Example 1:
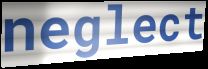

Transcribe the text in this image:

neglect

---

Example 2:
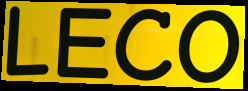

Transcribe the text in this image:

LECO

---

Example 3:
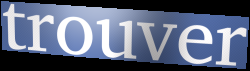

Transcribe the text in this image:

trouver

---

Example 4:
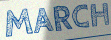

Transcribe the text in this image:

MARCH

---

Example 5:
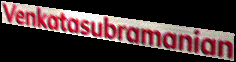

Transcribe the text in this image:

Venkatasubramanian